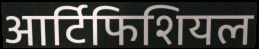
आर्टिफिशियल